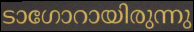
ടാഗോറായിരുന്നു